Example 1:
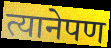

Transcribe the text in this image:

त्यानेपण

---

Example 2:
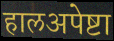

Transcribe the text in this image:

हालअपेष्टा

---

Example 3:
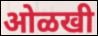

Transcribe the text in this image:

ओळखी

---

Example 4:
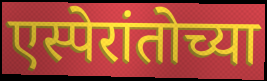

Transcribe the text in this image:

एस्पेरांतोच्या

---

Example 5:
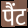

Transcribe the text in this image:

पैंट